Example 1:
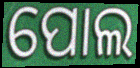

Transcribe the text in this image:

ପୋଲ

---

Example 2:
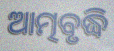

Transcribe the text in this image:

ଆତ୍ମବୃଦ୍ଧି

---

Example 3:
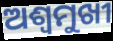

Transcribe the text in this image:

ଅଶ୍ୱମୁଖୀ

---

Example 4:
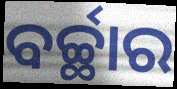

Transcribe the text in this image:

ବର୍ଚ୍ଛାର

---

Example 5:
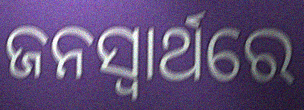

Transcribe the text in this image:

ଜନସ୍ୱାର୍ଥରେ